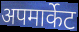
अपमार्केट